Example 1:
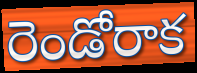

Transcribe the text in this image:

రెండోరాక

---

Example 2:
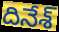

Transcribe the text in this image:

దినేశ్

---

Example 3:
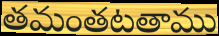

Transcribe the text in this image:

తమంతటతాము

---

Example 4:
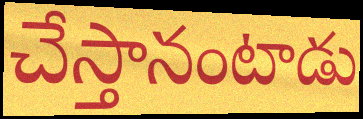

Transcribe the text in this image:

చేస్తానంటాడు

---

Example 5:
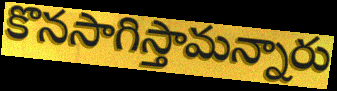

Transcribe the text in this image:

కొనసాగిస్తామన్నారు